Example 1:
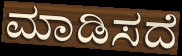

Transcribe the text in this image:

ಮಾಡಿಸದೆ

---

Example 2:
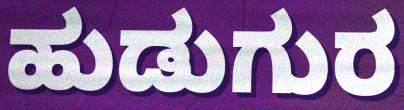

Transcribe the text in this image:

ಹುಡುಗುರ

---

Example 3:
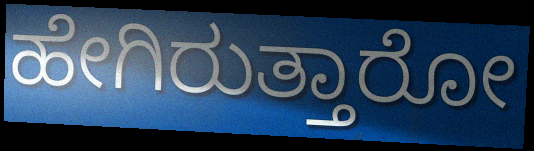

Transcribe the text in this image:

ಹೇಗಿರುತ್ತಾರೋ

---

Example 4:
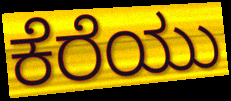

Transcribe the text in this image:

ಕೆರೆಯು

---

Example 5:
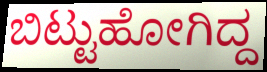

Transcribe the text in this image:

ಬಿಟ್ಟುಹೋಗಿದ್ದ